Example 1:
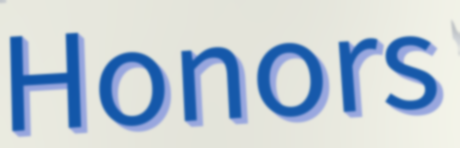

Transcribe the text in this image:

Honors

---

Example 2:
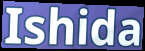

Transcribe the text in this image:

Ishida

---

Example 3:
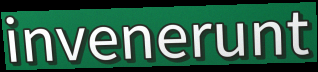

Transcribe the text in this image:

invenerunt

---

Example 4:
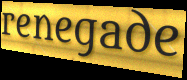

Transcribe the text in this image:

renegade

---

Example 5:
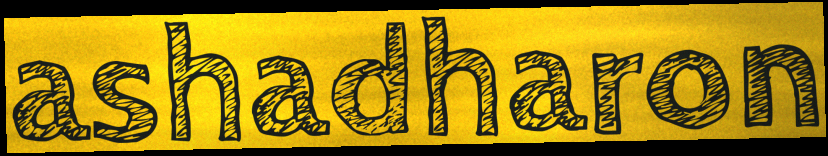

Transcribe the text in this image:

ashadharon